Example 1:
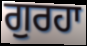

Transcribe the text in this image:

ਗੁਰਹਾ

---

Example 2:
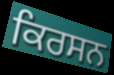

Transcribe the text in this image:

ਕਿਰਸਨ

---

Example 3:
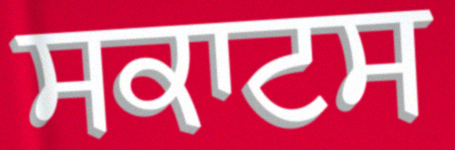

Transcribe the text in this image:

ਸਕਾਟਸ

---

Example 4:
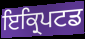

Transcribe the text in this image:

ਇਕ੍ਰਿਪਟਡ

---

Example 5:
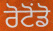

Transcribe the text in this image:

ਰੋਟੋਂਡੋ